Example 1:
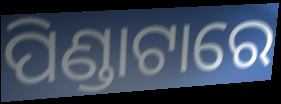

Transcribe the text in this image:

ପିଣ୍ଡାଟାରେ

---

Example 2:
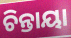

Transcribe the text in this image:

ଚିନ୍ତାୟା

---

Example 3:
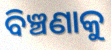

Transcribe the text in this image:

ବିଞ୍ଚଣାକୁ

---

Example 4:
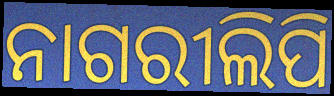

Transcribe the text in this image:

ନାଗରୀଲିପି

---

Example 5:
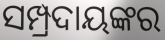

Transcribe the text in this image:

ସମ୍ପ୍ରଦାୟଙ୍କର